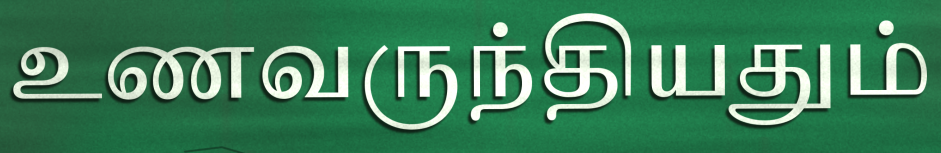
உணவருந்தியதும்